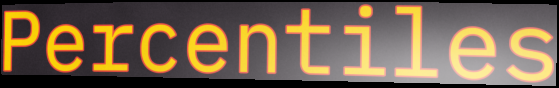
Percentiles